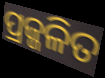
ପ୍ରଜ୍ଜଳିତ